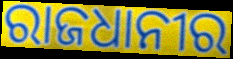
ରାଜଧାନୀର